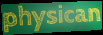
physican